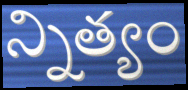
న్నిత్యం